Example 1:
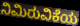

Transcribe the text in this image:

ನಿಮಿರುವಿಕೆಯ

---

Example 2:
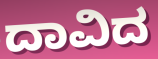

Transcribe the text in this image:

ದಾವಿದ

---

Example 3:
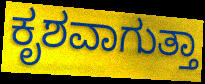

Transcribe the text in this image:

ಕೃಶವಾಗುತ್ತಾ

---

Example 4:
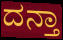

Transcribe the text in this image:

ದನ್ತಾ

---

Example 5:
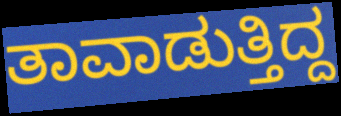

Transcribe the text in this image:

ತಾವಾಡುತ್ತಿದ್ದ